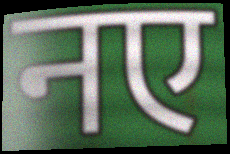
नए